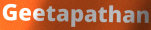
Geetapathan